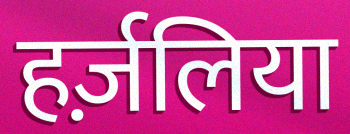
हर्ज़लिया